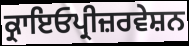
ਕ੍ਰਾਇਓਪ੍ਰੀਜ਼ਰਵੇਸ਼ਨ